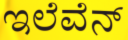
ಇಲೆವೆನ್